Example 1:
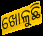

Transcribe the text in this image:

ଖୋଳୁଛି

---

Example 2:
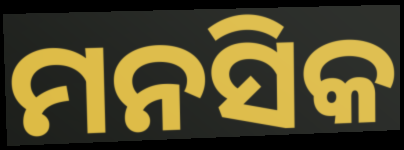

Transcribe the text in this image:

ମନସିକ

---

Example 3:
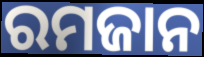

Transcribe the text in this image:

ରମଜାନ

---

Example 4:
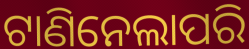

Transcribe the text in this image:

ଟାଣିନେଲାପରି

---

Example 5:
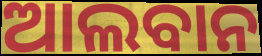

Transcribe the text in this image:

ଆଲବାନ